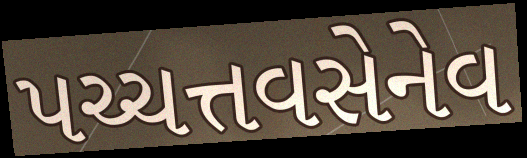
પચ્ચત્તવસેનેવ